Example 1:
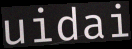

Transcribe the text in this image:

uidai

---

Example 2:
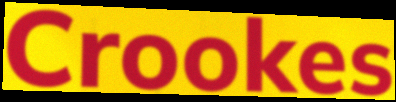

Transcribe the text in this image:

Crookes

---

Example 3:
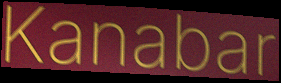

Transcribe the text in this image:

Kanabar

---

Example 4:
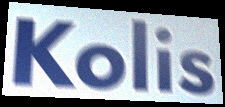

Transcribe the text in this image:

Kolis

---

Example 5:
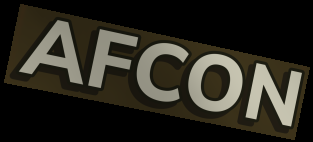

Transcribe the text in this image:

AFCON